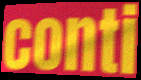
conti